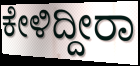
ಕೇಳಿದ್ದೀರಾ